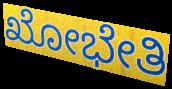
ಖೋಭೇತಿ